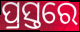
ପ୍ରସ୍ତରେ